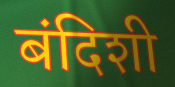
बंदिशी